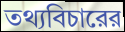
তথ্যবিচারের